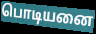
பொடியனை